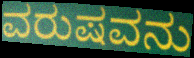
ವರುಷವನು